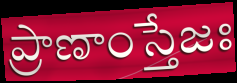
ప్రాణాంస్తేజః